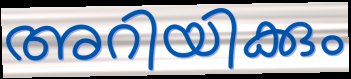
അറിയിക്കും